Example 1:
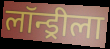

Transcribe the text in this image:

लॉन्ड्रीला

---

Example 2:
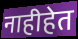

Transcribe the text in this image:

नाहीहेत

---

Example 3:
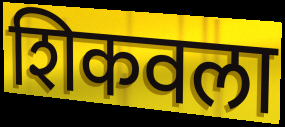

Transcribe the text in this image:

शिकवला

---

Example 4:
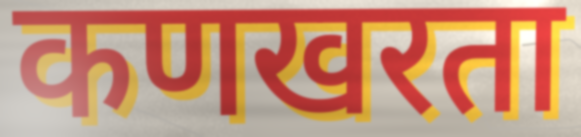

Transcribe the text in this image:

कणखरता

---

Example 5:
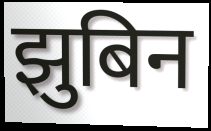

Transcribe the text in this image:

झुबिन